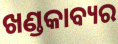
ଖଣ୍ଡକାବ୍ୟର